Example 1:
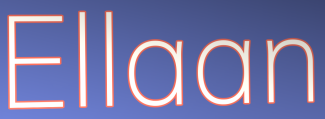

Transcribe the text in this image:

Ellaan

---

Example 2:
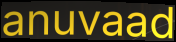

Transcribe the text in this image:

anuvaad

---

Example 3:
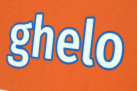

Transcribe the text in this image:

ghelo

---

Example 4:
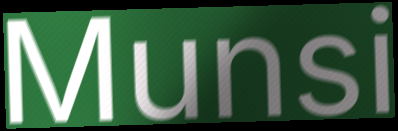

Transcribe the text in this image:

Munsi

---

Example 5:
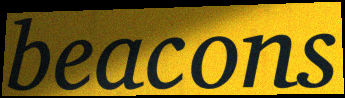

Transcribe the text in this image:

beacons